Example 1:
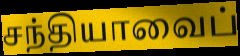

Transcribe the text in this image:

சந்தியாவைப்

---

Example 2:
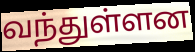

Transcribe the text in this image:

வந்துள்ளன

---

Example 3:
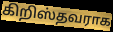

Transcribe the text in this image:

கிறிஸ்தவராக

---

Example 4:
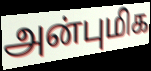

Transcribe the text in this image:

அன்புமிக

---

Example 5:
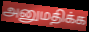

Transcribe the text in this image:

அனுமதிக்க